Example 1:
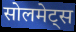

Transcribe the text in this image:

सोलमेट्स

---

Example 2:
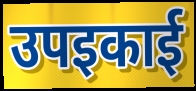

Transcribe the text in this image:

उपइकाई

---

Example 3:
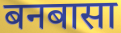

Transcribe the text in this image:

बनबासा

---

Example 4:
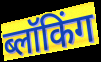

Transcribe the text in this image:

ब्लॉकिंग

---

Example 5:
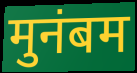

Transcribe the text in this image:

मुनंबम